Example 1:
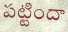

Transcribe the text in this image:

పట్టిందా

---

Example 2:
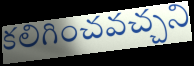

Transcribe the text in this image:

కలిగించవచ్చని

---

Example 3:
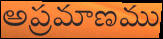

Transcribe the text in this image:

అప్రమాణము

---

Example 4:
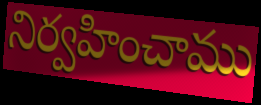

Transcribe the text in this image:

నిర్వహించాము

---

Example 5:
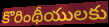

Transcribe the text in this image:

కొరింథీయులకు